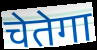
चेतेगा